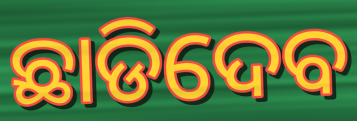
ଛାଡିଦେବ